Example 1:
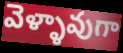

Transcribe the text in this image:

వెళ్ళావుగా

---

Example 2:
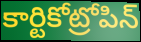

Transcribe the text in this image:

కార్టికోట్రోపిన్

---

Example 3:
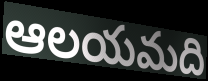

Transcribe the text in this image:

ఆలయమది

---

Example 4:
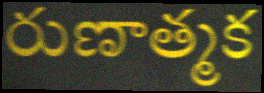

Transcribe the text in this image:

రుణాత్మక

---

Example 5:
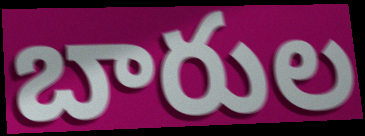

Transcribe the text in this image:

బారుల